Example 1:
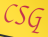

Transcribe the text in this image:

CSG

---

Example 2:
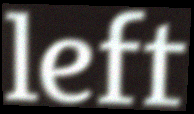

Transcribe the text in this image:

left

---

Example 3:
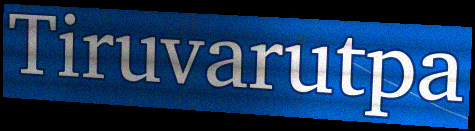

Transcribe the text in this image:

Tiruvarutpa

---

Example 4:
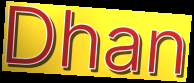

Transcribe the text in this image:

Dhan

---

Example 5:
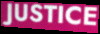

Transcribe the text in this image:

JUSTICE